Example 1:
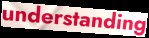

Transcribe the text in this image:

understanding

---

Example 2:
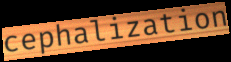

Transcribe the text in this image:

cephalization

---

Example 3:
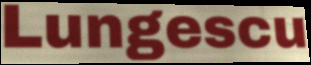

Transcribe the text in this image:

Lungescu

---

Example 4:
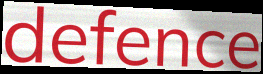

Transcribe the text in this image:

defence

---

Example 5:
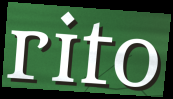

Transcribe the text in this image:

rito